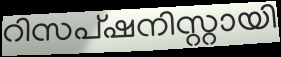
റിസപ്ഷനിസ്റ്റായി